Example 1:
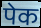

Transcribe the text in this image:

पेक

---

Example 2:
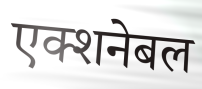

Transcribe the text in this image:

एक्शनेबल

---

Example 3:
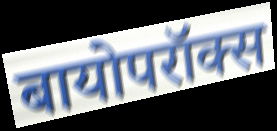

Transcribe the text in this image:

बायोपरॉक्स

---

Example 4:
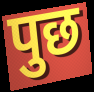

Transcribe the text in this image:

पुछ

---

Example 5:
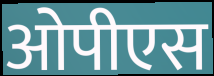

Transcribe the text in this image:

ओपीएस